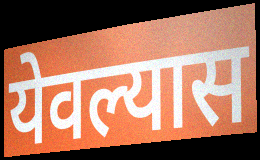
येवल्यास